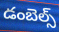
డంబెల్స్